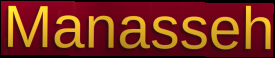
Manasseh